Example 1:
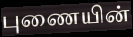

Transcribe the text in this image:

புணையின்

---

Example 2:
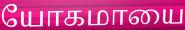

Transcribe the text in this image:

யோகமாயை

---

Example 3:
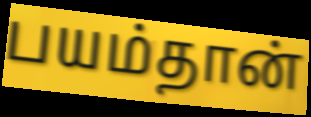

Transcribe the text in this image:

பயம்தான்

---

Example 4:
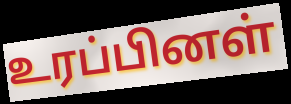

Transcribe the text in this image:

உரப்பினள்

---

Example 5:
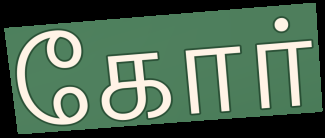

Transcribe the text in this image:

கோர்